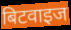
बिटवाइज